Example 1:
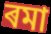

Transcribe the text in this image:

ৰমা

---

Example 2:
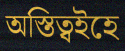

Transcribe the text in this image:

অস্তিত্বইহে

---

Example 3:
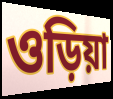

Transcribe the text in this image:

ওড়িয়া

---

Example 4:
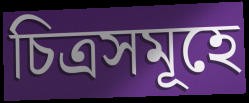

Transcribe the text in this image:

চিত্ৰসমূহে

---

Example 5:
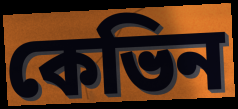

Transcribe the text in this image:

কেভিন